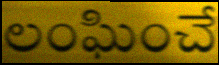
లంఘించే